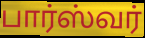
பார்ஸ்வர்